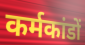
कर्मकांडों